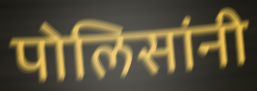
पोलिसांनी